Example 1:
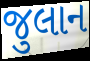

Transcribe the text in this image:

જુલાન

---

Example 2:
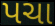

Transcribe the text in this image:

પચા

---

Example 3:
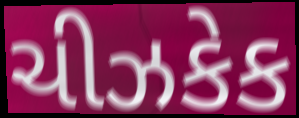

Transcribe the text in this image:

ચીઝકેક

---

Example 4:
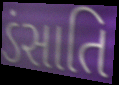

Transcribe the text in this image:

ડંસાતિ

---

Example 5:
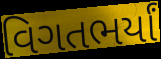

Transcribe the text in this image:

વિગતભર્યાં